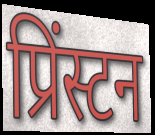
प्रिंस्टन